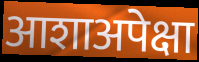
आशाअपेक्षा